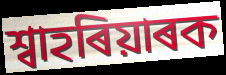
শ্বাহৰিয়াৰক